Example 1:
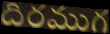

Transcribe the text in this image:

దిరముగ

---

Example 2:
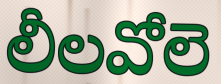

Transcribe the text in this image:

లీలవోలె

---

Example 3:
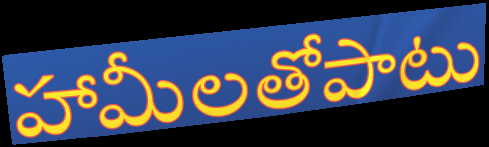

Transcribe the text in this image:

హామీలతోపాటు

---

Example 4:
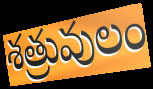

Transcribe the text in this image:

శత్రువులం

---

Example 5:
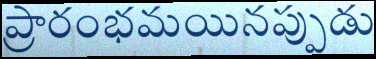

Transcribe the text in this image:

ప్రారంభమయినప్పుడు